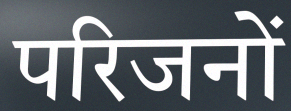
परिजनों